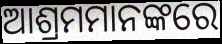
ଆଶ୍ରମମାନଙ୍କରେ